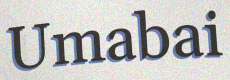
Umabai